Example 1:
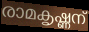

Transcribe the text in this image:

രാമകൃഷ്ണന്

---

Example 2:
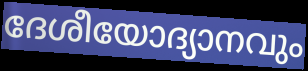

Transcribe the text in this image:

ദേശീയോദ്യാനവും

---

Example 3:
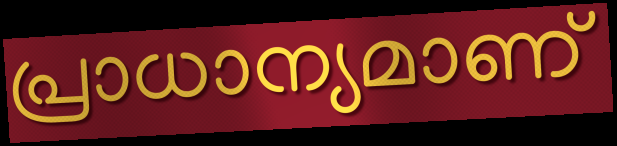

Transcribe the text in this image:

പ്രാധാന്യമാണ്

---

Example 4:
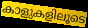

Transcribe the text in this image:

കാളുകളിലൂടെ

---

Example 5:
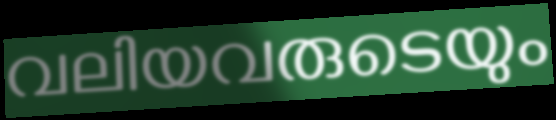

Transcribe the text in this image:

വലിയവരുടെയും